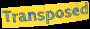
Transposed